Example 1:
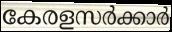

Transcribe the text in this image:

കേരളസർക്കാർ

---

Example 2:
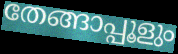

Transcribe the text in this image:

തേങ്ങാപ്പൂളും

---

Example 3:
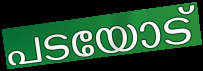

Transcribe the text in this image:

പടയോട്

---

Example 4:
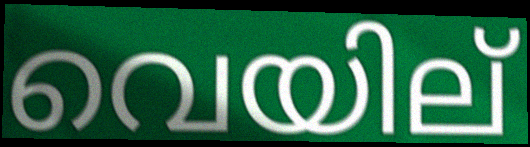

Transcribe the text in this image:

വെയില്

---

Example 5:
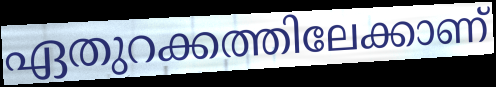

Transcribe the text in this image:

ഏതുറക്കത്തിലേക്കാണ്